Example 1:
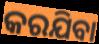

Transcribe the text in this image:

କରଯିବା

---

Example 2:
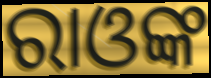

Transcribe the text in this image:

ରାଓଙ୍କ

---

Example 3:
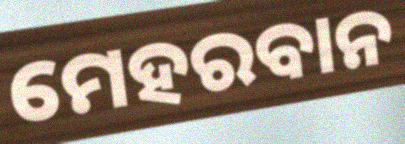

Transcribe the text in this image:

ମେହରବାନ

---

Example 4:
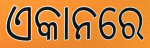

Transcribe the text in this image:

ଏକାନରେ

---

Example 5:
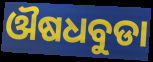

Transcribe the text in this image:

ଔଷଧବୁଡା